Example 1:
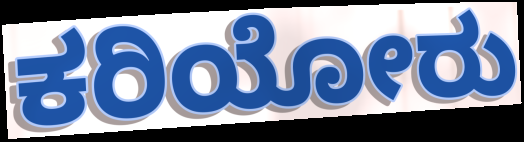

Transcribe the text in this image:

ಕರಿಯೋರು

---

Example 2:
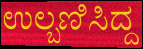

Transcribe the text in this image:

ಉಲ್ಬಣಿಸಿದ್ದ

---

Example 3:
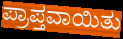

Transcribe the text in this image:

ಪ್ರಾಪ್ತವಾಯಿತು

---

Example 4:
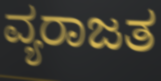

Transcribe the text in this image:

ವ್ಯರಾಜತ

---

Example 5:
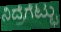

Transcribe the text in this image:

ನಿದ್ರೆಗೆಟ್ಟು